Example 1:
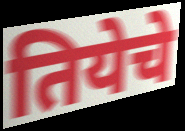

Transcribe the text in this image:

तियेचे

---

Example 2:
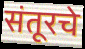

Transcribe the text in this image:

संतूरचे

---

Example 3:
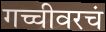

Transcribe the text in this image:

गच्चीवरचं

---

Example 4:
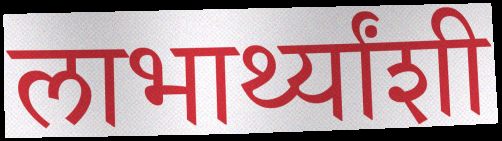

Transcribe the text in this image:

लाभार्थ्यांशी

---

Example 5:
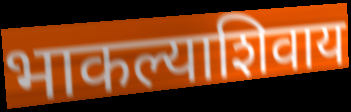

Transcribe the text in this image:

भाकल्याशिवाय